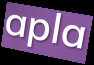
apla